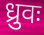
ध्रुवः